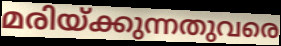
മരിയ്ക്കുന്നതുവരെ